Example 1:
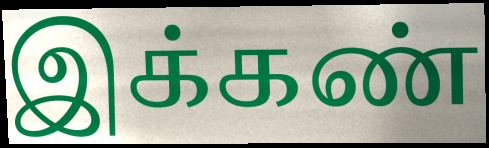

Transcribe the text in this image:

இக்கண்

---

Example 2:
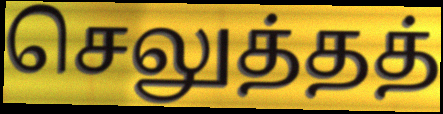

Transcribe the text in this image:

செலுத்தத்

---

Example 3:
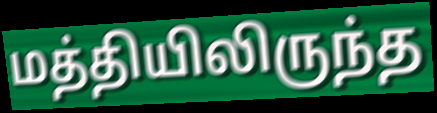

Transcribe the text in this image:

மத்தியிலிருந்த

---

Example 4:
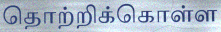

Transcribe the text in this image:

தொற்றிக்கொள்ள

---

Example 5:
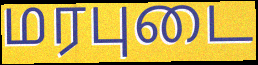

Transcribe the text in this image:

மரபுடை